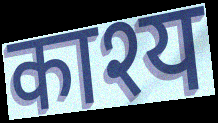
काश्य